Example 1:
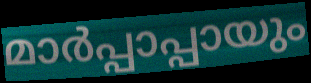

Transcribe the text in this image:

മാർപ്പാപ്പായും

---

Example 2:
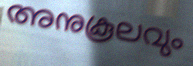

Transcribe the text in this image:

അനുകൂലവും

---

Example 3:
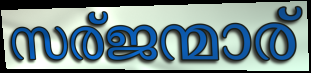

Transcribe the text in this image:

സര്ജന്മാര്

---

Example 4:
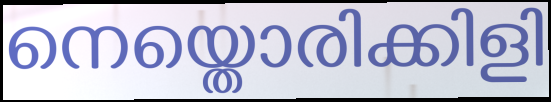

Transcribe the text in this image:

നെയ്തൊരിക്കിളി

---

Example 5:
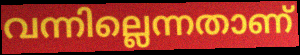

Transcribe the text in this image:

വന്നില്ലെന്നതാണ്